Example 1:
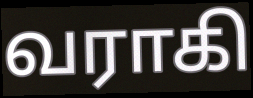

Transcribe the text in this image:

வராகி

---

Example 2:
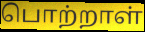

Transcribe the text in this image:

பொற்றாள்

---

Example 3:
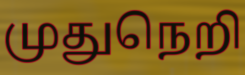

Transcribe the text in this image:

முதுநெறி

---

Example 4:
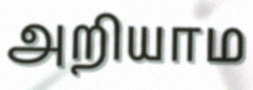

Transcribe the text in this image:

அறியாம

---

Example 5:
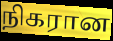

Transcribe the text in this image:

நிகரான